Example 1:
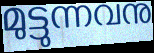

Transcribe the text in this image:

മുട്ടുന്നവനു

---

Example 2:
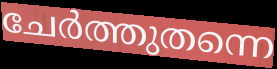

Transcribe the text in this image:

ചേർത്തുതന്നെ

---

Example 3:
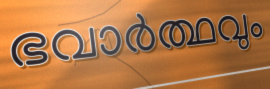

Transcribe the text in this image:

ഭവാർത്ഥവും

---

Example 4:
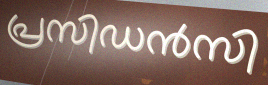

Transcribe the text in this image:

പ്രസിഡൻസി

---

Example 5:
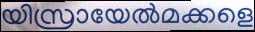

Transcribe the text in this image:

യിസ്രായേൽമക്കളെ